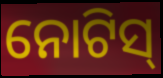
ନୋଟିସ୍